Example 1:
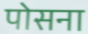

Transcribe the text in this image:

पोसना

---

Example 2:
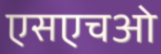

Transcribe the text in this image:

एसएचओ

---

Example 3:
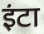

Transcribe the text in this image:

इंटा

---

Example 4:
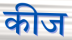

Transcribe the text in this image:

कीज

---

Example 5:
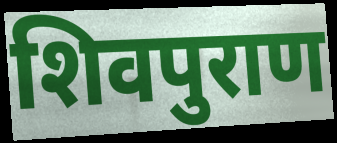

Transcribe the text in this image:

शिवपुराण